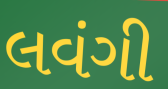
લવંગી